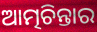
ଆତ୍ମଚିନ୍ତାର